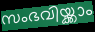
സംഭവിയ്ക്കാം